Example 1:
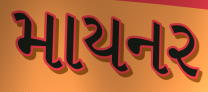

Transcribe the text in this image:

માયનર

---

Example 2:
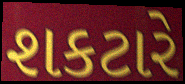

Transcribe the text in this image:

શકટારે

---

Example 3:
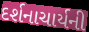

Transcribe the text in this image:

દર્શનાચાર્યની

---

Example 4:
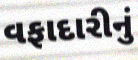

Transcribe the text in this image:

વફાદારીનું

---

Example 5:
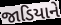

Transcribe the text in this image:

જાડિયાને